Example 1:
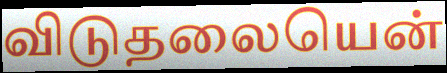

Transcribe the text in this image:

விடுதலையென்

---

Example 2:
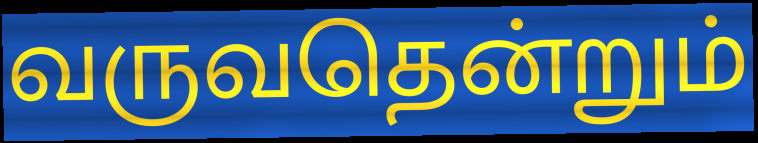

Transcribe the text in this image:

வருவதென்றும்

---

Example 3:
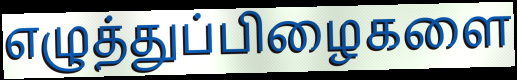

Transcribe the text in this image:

எழுத்துப்பிழைகளை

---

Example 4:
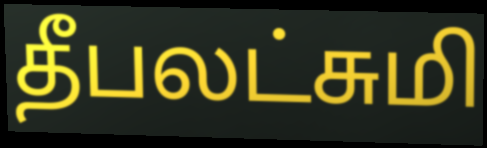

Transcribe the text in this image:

தீபலட்சுமி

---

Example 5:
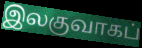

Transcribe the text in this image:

இலகுவாகப்